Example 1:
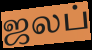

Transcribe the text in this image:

ஜலப்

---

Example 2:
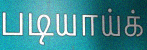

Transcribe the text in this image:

படியாய்க்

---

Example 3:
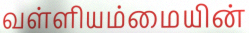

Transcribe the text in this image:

வள்ளியம்மையின்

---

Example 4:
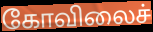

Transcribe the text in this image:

கோவிலைச்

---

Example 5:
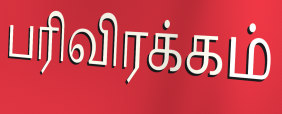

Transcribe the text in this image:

பரிவிரக்கம்